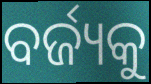
ବର୍ଜ୍ୟକୁ